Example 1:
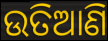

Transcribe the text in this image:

ଉତିଆଣି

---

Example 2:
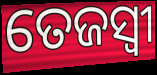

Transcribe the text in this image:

ତେଜସ୍ବୀ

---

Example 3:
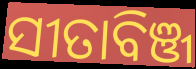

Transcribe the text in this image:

ସୀତାବିଞ୍ଜ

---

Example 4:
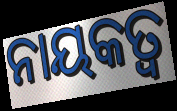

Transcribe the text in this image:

ନାୟକତ୍ୱ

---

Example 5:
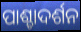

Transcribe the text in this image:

ପାଶ୍ଚାଦର୍ଶନ